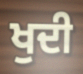
ਖੁਦੀ